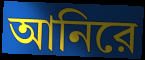
আনিরে